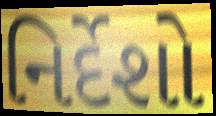
નિર્દેશો